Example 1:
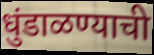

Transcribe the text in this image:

धुंडाळण्याची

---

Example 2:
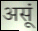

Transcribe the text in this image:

असूं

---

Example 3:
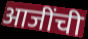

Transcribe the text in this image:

आजींची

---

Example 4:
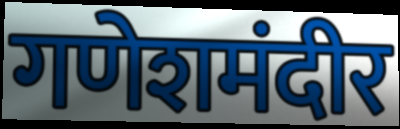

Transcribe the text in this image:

गणेशमंदीर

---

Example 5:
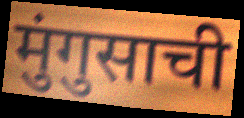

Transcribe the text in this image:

मुंगुसाची